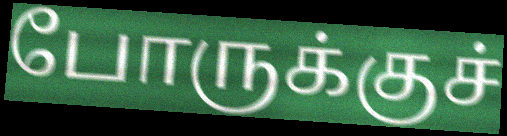
போருக்குச்